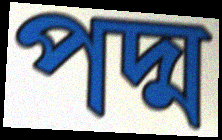
পদ্ম